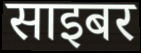
साइबर